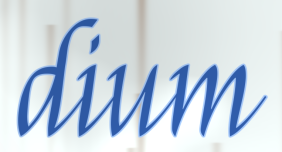
dium